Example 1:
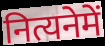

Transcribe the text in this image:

नित्यनेमें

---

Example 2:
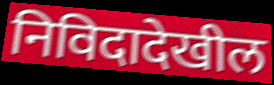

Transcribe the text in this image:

निविदादेखील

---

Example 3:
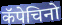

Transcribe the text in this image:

कॅपेचिनो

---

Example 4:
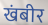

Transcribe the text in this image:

खंबीर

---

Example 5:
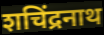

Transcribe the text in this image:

शचिंद्रनाथ